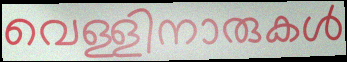
വെള്ളിനാരുകൾ